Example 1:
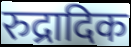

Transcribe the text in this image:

रुद्रादिक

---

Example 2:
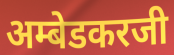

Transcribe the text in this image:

अम्बेडकरजी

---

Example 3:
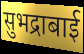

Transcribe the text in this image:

सुभद्राबाई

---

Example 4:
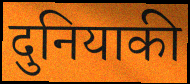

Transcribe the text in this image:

दुनियाकी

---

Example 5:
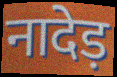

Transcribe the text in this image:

नादेड़